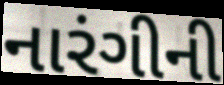
નારંગીની